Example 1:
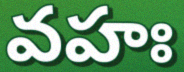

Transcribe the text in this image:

వహః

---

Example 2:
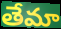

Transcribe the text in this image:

తేమా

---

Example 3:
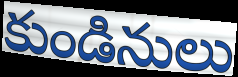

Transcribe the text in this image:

కుండినులు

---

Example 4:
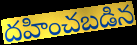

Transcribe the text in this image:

దహించబడిన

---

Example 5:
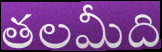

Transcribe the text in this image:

తలమీది